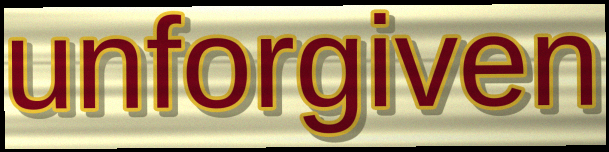
unforgiven